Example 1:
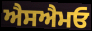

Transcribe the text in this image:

ਐਸਐਮਓ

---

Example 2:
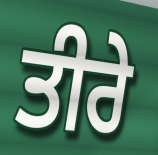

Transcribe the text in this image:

ਤੀਰੇ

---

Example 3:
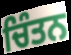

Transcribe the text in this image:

ਚਿੰਤਨ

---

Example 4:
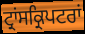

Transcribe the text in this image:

ਟ੍ਰਾਂਸਕ੍ਰਿਪਟਰਾਂ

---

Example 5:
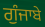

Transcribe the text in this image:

ਗੁੰਜਾਬੇ